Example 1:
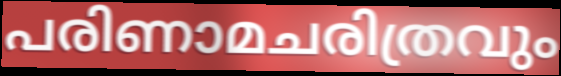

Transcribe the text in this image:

പരിണാമചരിത്രവും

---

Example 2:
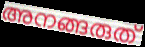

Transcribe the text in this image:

അനങ്ങരുത്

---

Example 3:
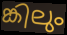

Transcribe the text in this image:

ങ്കിലും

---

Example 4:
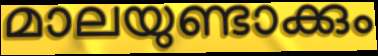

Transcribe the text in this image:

മാലയുണ്ടാക്കും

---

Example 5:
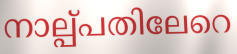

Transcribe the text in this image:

നാല്പ്പതിലേറെ